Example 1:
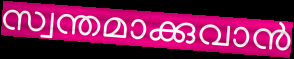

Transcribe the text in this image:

സ്വന്തമാക്കുവാൻ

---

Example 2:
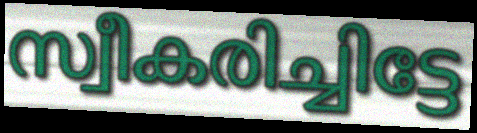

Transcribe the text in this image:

സ്വീകരിച്ചിട്ടേ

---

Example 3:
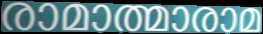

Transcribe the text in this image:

രാമാത്മാരാമ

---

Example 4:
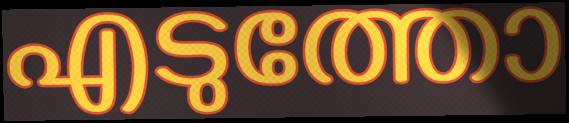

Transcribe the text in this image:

എടുത്തോ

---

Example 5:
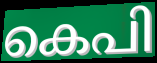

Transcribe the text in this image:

കെപി